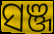
ସଞ୍ଜ